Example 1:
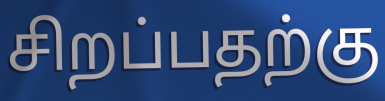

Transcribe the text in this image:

சிறப்பதற்கு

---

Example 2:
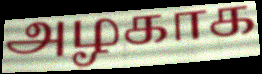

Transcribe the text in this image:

அழகாக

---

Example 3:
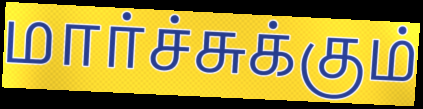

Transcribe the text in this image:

மார்ச்சுக்கும்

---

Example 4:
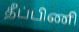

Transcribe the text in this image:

தீப்பிணி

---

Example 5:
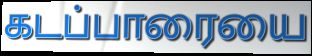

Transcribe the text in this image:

கடப்பாரையை